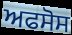
ਅਫਸੋਸ